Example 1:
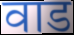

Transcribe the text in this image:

वाड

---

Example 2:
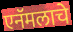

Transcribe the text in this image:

एनॅमलाचे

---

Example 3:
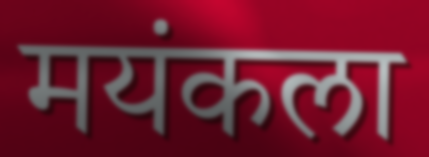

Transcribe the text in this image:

मयंकला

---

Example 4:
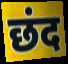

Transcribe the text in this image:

छंद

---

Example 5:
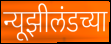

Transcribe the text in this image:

न्यूझीलंडच्या